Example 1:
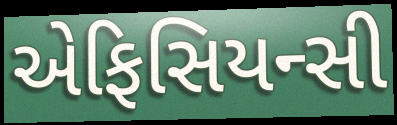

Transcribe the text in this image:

એફિસિયન્સી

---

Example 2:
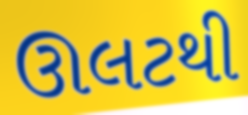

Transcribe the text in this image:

ઊલટથી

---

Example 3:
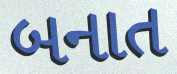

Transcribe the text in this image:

બનાત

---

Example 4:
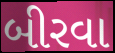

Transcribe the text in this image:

બીરવા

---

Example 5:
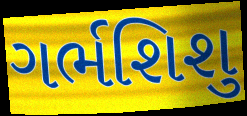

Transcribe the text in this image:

ગર્ભશિશુ